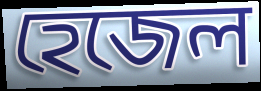
হেজেল